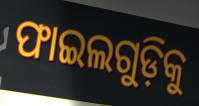
ଫାଇଲଗୁଡ଼ିକୁ